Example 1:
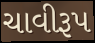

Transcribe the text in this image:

ચાવીરૂપ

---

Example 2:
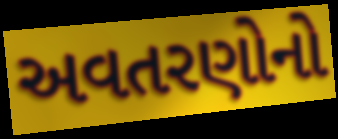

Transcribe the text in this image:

અવતરણોનો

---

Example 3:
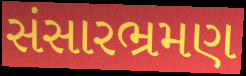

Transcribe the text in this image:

સંસારભ્રમણ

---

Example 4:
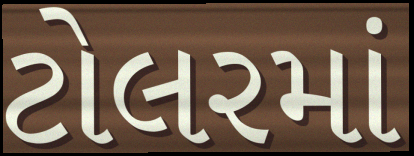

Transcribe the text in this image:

ટોલરમાં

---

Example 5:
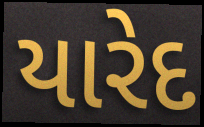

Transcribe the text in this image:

યારેદ